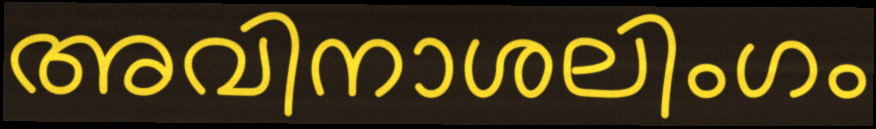
അവിനാശലിംഗം